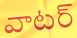
వాటర్